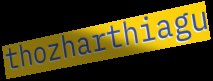
thozharthiagu